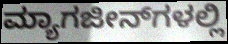
ಮ್ಯಾಗಜೀನ್‌ಗಳಲ್ಲಿ